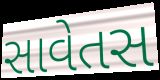
સાવેતસ